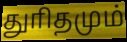
துரிதமும்